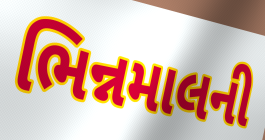
ભિન્નમાલની